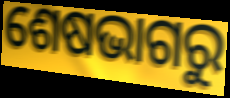
ଶେଷଭାଗରୁ